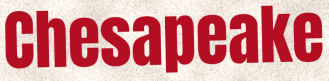
Chesapeake